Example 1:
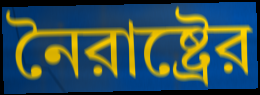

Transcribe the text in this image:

নৈরাষ্ট্রের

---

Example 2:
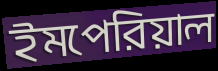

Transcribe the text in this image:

ইমপেরিয়াল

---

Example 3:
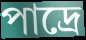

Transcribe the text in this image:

পাদ্রে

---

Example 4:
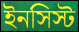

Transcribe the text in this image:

ইনসিস্ট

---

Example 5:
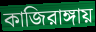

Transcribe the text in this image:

কাজিরাঙ্গায়